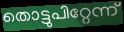
തൊട്ടുപിറ്റേന്ന്